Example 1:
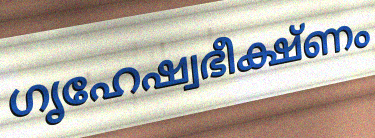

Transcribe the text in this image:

ഗൃഹേഷ്വഭീക്ഷ്ണം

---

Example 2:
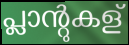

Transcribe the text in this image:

പ്ലാന്റുകള്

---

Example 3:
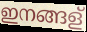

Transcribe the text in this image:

ഇനങ്ങള്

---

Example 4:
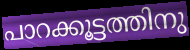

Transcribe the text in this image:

പാറക്കൂട്ടത്തിനു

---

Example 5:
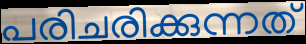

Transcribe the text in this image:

പരിചരിക്കുന്നത്